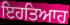
ਇਹਤਿਆਹ